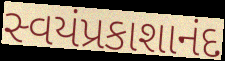
સ્વયંપ્રકાશાનંદ